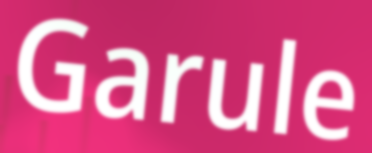
Garule